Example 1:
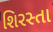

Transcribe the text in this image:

શિરસ્તા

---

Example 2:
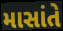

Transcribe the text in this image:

માસાંતે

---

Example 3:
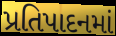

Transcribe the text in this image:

પ્રતિપાદનમાં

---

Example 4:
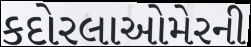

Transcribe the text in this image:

કદોરલાઓમેરની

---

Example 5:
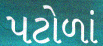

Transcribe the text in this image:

પટોળાં